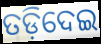
ତଡ଼ିଦେଇ